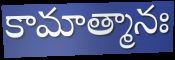
కామాత్మానః